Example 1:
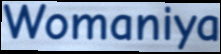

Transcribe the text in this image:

Womaniya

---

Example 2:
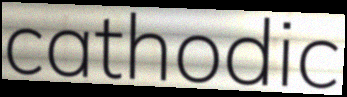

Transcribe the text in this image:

cathodic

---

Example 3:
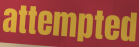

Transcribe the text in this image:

attempted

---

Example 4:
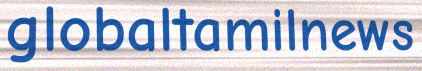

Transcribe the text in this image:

globaltamilnews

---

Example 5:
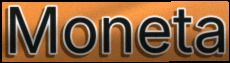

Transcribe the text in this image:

Moneta